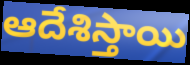
ఆదేశిస్తాయి